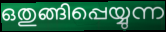
ഒതുങ്ങിപ്പെയ്യുന്ന